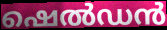
ഷെൽഡൻ